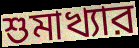
শুমাখ্যার